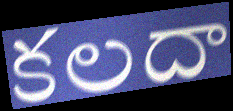
కలదా